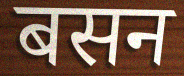
बसन